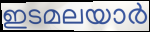
ഇടമലയാർ